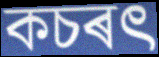
কচৰৎ